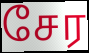
சேர